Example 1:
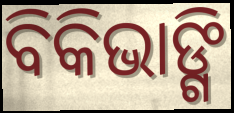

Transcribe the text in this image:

ବିକିଭାଙ୍ଗି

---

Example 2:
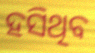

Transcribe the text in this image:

ହସିଥିବ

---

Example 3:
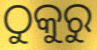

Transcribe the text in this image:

ଠୁକୁରୁ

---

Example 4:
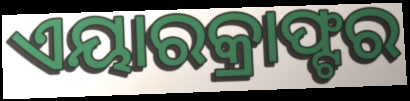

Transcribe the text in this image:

ଏୟାରକ୍ରାଫ୍ଟର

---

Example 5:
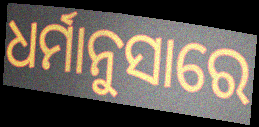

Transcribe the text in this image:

ଧର୍ମାନୁସାରେ